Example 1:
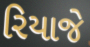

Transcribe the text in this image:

રિયાજે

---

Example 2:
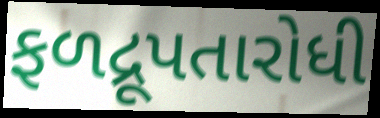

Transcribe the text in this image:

ફળદ્રૂપતારોધી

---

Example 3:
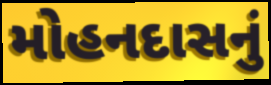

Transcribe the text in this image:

મોહનદાસનું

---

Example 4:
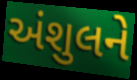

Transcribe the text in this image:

અંશુલને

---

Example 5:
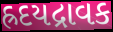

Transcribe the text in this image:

હ્રદયદ્રાવક